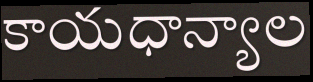
కాయధాన్యాల